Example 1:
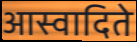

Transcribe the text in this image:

आस्वादिते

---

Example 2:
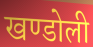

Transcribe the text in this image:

खण्डोली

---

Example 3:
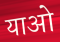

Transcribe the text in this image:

याओ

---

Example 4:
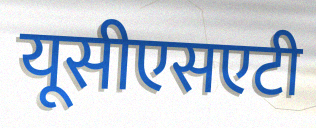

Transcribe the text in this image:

यूसीएसएटी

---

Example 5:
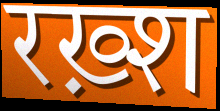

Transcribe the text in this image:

रख़्श